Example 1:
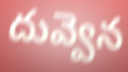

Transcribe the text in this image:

దువ్వెన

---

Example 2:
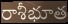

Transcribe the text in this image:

రాశీభూత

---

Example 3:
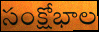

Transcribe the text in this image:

సంక్షోభాల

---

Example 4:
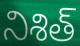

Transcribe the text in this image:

నిశిత్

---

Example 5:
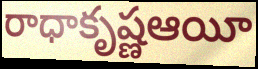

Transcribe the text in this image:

రాధాకృష్ణఆయీ